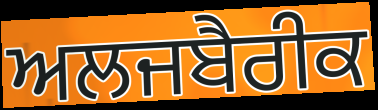
ਅਲਜਬੈਰੀਕ